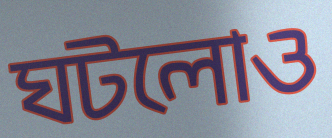
ঘটলোও